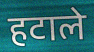
हटाले